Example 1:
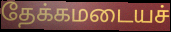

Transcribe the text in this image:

தேக்கமடையச்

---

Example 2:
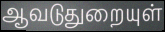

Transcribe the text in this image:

ஆவடுதுறையுள்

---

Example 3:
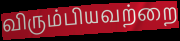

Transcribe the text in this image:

விரும்பியவற்றை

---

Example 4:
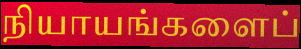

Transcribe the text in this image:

நியாயங்களைப்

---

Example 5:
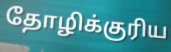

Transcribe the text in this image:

தோழிக்குரிய